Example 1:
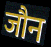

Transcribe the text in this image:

जौन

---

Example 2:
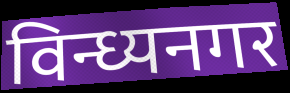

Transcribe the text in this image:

विन्ध्यनगर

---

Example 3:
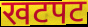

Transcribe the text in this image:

खटपट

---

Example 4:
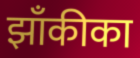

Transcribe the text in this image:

झाँकीका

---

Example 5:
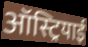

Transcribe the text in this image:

ऑस्ट्रियाई